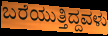
ಬರೆಯುತ್ತಿದ್ದವಳು